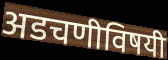
अडचणीविषयी